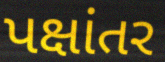
પક્ષાંતર